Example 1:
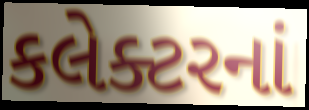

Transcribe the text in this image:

કલેક્ટરનાં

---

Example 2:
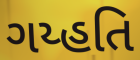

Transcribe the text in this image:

ગય્હતિ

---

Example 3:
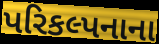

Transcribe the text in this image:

પરિકલ્પનાના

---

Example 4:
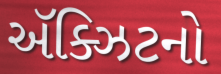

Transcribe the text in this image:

ઍક્ઝિટનો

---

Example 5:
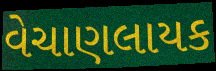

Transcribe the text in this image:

વેચાણલાયક